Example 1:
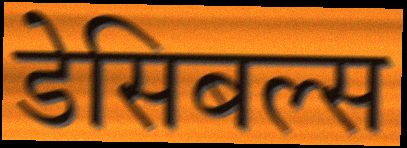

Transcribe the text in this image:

डेसिबल्स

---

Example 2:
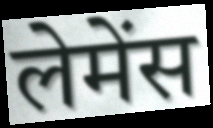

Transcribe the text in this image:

लेमेंस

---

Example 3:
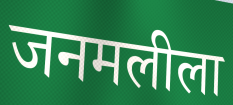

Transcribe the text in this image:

जनमलीला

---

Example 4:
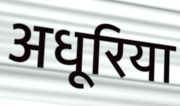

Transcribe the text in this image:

अधूरिया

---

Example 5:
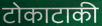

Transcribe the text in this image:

टोकाटाकी